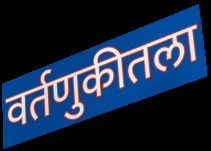
वर्तणुकीतला